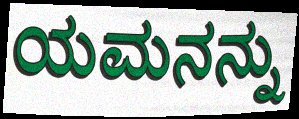
ಯಮನನ್ನು